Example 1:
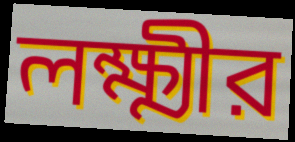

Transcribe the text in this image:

লক্ষ্মীর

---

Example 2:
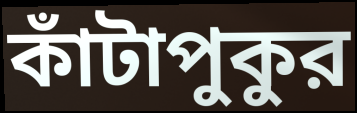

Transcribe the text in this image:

কাঁটাপুকুর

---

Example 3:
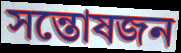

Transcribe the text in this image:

সন্তোষজন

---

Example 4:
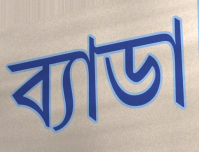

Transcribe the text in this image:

ব্যাডা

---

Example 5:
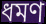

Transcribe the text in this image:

ধমণ